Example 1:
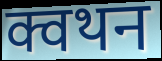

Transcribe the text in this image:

क्वथन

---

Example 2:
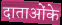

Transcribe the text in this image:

दाताओंके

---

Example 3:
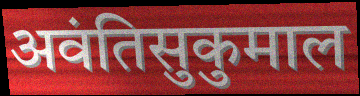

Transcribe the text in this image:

अवंतिसुकुमाल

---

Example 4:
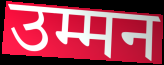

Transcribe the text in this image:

उम्मन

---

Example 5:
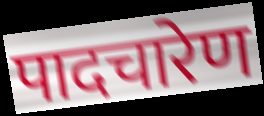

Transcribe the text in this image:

पादचारेण